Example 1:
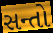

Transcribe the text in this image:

સન્તો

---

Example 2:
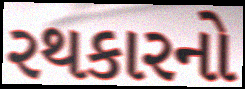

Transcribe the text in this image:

રથકારનો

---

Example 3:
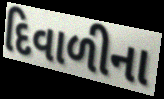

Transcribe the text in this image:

દિવાળીના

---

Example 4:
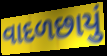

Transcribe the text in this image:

વાદળછાયું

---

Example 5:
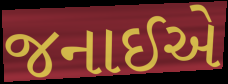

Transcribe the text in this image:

જનાઈએ